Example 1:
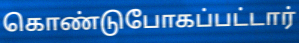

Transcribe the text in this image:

கொண்டுபோகப்பட்டார்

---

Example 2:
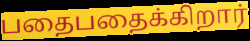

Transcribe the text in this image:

பதைபதைக்கிறார்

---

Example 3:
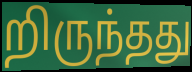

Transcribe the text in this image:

றிருந்தது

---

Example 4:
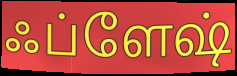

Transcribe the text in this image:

ஃப்ளேஷ்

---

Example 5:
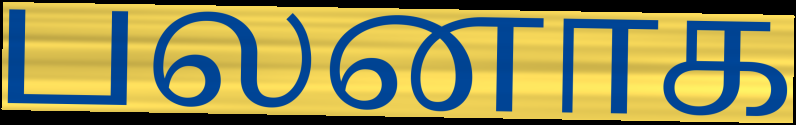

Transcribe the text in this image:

பலனாக